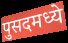
पुसदमध्ये